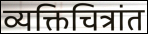
व्यक्तिचित्रांत